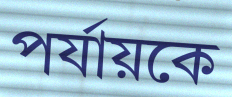
পর্যায়কে